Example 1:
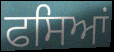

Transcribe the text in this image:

ਫਸਿਆਂ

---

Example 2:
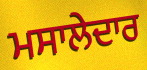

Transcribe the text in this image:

ਮਸਾਲੇਦਾਰ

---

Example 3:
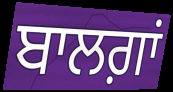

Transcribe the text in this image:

ਬਾਲਗ਼ਾਂ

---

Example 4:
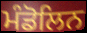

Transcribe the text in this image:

ਮੰਡੋਲਿਨ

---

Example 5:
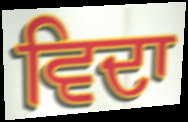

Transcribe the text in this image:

ਵਿਦਾ